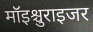
मॉइश्चुराइजर